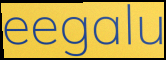
eegalu